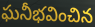
ఘనీభవించిన